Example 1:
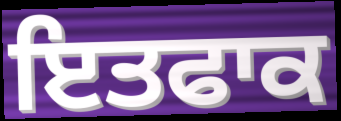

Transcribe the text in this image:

ਇਤਫਾਕ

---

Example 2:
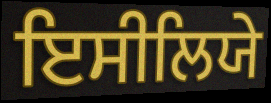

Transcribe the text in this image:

ਇਸੀਲਿਯੇ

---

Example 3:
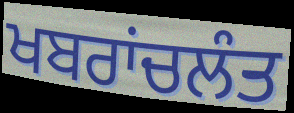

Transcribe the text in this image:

ਖਬਰਾਂਚਲੰਤ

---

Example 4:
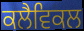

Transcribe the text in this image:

ਕਲੈਵਿਕਲ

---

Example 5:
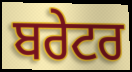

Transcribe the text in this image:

ਬਰੇਟਰ